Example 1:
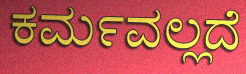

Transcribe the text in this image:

ಕರ್ಮವಲ್ಲದೆ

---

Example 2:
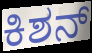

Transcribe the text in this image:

ಕಿಶನ್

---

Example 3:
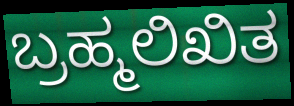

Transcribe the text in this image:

ಬ್ರಹ್ಮಲಿಖಿತ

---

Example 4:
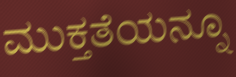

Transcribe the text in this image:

ಮುಕ್ತತೆಯನ್ನೂ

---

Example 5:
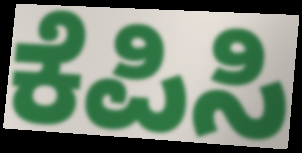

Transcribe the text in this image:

ಕೆಪಿಸಿ